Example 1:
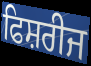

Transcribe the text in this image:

ਫਿਸ਼ਰੀਜ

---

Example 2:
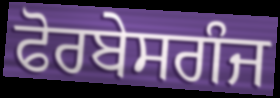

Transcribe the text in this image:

ਫੋਰਬੇਸਗੰਜ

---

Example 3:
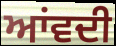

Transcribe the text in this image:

ਆਂਵਦੀ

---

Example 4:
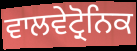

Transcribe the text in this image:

ਵਾਲਵੇਟ੍ਰੋਨਿਕ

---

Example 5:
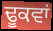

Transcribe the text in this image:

ਢੂਕਵਾਂ